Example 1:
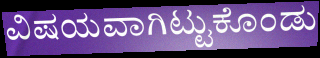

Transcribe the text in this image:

ವಿಷಯವಾಗಿಟ್ಟುಕೊಂಡು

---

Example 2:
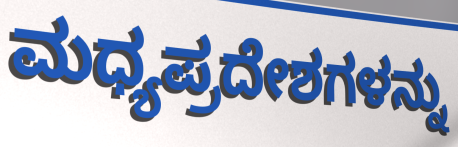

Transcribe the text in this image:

ಮಧ್ಯಪ್ರದೇಶಗಳನ್ನು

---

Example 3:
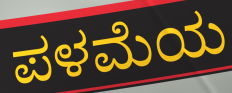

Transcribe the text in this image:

ಪಳಮೆಯ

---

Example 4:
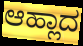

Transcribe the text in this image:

ಆಹ್ಲಾದ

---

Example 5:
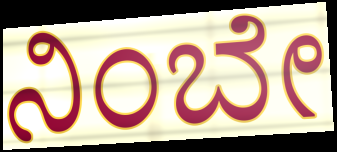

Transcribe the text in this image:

ನಿಂಬೇ